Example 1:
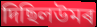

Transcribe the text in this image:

দিছিলউমৰ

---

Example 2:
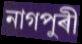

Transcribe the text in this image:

নাগপুৰী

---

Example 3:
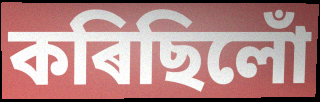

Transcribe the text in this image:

কৰিছিলোঁ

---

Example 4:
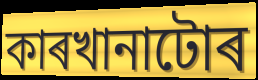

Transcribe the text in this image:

কাৰখানাটোৰ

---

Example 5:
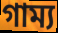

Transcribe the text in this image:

গাম্য